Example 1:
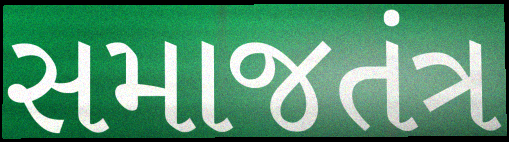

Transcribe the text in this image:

સમાજતંત્ર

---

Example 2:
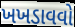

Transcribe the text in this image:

ખખડાવવો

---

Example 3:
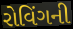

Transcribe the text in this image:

રોવિંગની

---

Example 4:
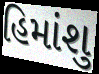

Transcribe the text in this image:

હિમાંશુ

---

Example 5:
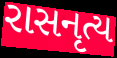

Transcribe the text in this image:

રાસનૃત્ય